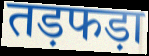
तड़फड़ा